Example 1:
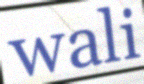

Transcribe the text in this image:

wali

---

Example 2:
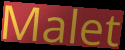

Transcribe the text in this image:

Malet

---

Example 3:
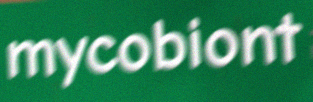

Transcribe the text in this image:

mycobiont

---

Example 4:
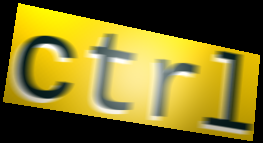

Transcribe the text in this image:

ctrl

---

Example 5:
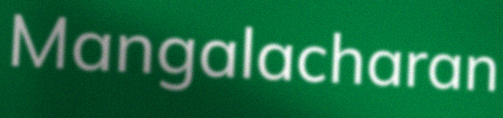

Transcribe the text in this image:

Mangalacharan